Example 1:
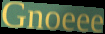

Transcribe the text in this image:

Gnoeee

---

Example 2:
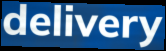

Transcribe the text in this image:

delivery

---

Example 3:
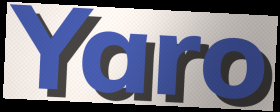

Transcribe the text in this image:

Yaro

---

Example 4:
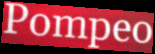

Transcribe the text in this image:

Pompeo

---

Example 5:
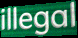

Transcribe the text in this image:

illegal